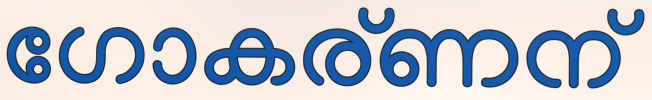
ഗോകര്ണന്